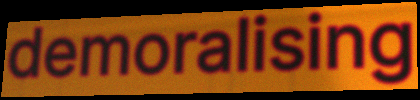
demoralising